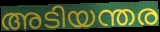
അടിയന്തര